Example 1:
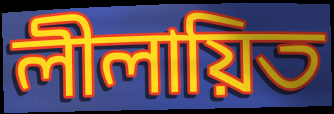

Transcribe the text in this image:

লীলায়িত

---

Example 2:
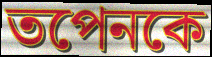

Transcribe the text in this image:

তপেনকে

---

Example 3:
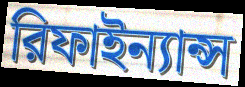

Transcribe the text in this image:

রিফাইন্যান্স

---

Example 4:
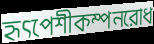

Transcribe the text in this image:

হৃৎপেশীকম্পনরোধ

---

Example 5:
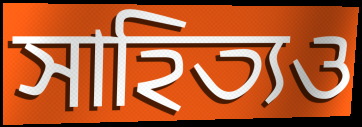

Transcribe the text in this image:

সাহিত্যও